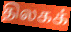
திலகக்